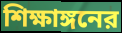
শিক্ষাঙ্গনের